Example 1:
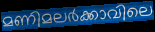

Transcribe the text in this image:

മണിമലർക്കാവിലെ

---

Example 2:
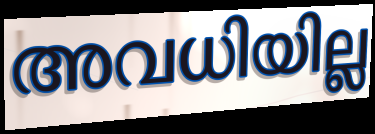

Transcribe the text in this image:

അവധിയില്ല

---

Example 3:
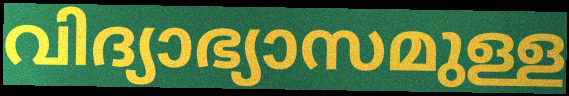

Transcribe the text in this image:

വിദ്യാഭ്യാസമുള്ള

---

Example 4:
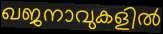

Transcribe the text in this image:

ഖജനാവുകളിൽ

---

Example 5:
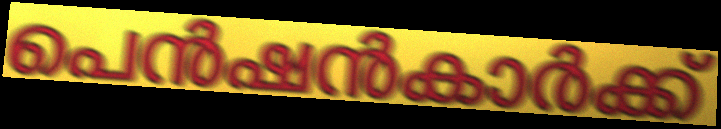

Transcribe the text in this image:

പെൻഷൻകാർക്ക്